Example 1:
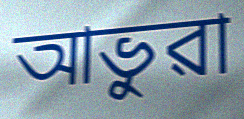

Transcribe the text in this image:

আভুৱা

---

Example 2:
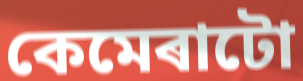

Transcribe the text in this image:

কেমেৰাটো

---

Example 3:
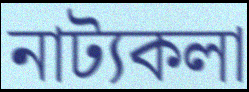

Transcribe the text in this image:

নাট্যকলা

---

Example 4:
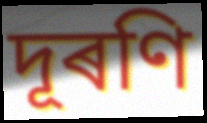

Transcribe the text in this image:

দূৰণি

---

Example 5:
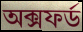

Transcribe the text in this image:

অক্সফৰ্ড